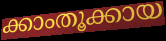
ക്കാംതൂക്കായ